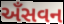
અઁસવન